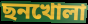
ছনখোলা